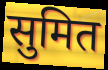
सुमित